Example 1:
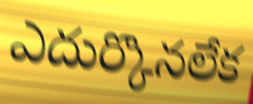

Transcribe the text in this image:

ఎదుర్కొనలేక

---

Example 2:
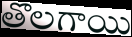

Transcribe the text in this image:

తొలగాయి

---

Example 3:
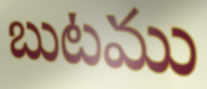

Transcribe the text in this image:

బుటము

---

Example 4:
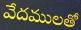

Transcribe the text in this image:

వేదములతో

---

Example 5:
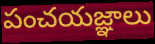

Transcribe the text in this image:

పంచయజ్ఞాలు